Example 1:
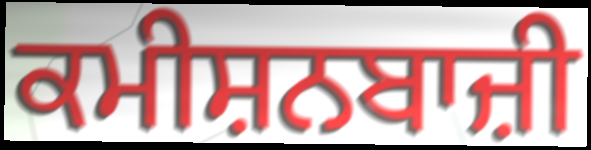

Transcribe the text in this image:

ਕਮੀਸ਼ਨਬਾਜ਼ੀ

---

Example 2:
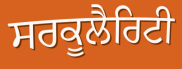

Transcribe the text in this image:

ਸਰਕੂਲੈਰਿਟੀ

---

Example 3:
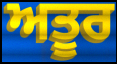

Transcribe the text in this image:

ਅਤੂਰ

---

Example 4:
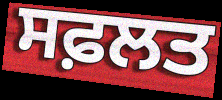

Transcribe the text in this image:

ਸਫ਼ਲਤ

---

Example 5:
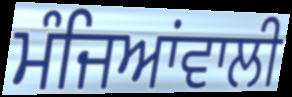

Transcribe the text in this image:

ਮੰਜਿਆਂਵਾਲੀ